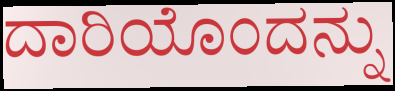
ದಾರಿಯೊಂದನ್ನು